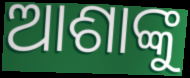
ଆଶାଙ୍କୁ